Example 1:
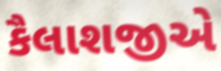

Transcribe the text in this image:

કૈલાશજીએ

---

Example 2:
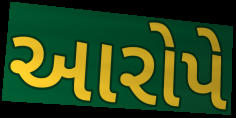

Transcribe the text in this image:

આરોપે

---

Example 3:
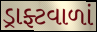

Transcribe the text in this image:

ડ્રાફ્ટવાળાં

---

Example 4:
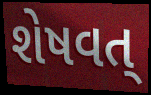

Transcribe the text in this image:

શેષવત્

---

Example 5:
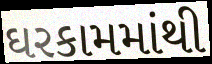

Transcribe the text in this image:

ઘરકામમાંથી